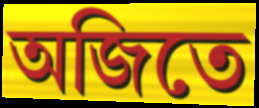
অজিতে